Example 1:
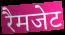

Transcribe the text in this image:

रैमजेट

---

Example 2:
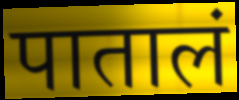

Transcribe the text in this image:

पातालं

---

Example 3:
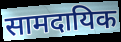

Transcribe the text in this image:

सामदायिक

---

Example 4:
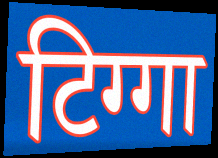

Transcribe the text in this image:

टिग्गा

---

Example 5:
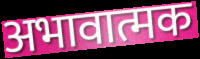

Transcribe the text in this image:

अभावात्मक